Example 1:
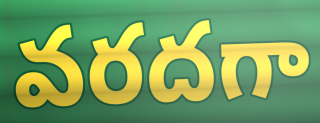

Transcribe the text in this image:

వరదగా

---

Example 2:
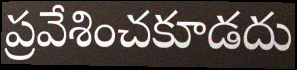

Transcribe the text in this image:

ప్రవేశించకూడదు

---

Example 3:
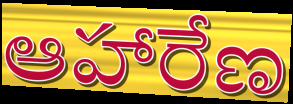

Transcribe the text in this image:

ఆహారేణ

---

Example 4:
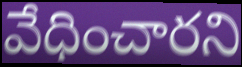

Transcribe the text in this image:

వేధించారని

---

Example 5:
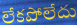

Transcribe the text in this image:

లేకపోలేదు